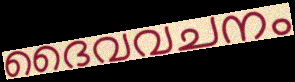
ദൈവവചനം